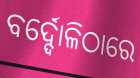
ବର୍ଦ୍ଦୋଳିଠାରେ